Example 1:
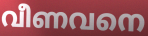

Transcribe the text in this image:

വീണവനെ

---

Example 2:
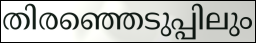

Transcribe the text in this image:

തിരഞ്ഞെടുപ്പിലും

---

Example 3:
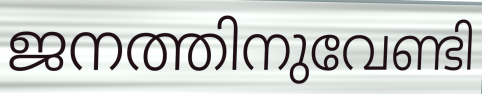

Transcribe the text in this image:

ജനത്തിനുവേണ്ടി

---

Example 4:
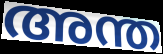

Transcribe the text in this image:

അന്ത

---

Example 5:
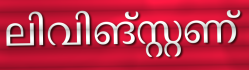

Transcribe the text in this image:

ലിവിങ്സ്റ്റണ്